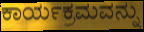
ಕಾರ್ಯಕ್ರಮವನ್ನು